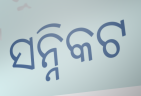
ସନ୍ନିକଟ